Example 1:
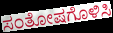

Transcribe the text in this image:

ಸಂತೋಷಗೊಳಿಸಿ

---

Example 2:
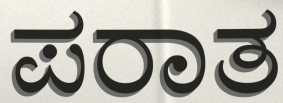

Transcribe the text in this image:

ಪರಾತ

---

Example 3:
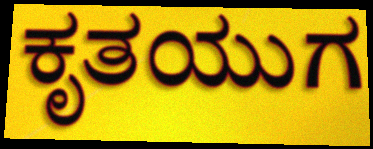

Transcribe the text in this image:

ಕೃತಯುಗ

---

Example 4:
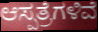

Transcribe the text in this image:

ಆಸ್ಪತ್ರೆಗಳಿವೆ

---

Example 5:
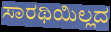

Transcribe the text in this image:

ಸಾರಥಿಯಿಲ್ಲದ